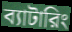
ব্যাটারিং